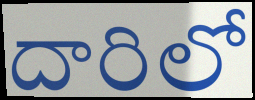
దారిలో